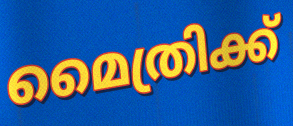
മൈത്രിക്ക്